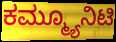
ಕಮ್ಮ್ಯೂನಿಟಿ